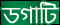
ডগাটি